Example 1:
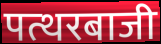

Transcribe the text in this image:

पत्थरबाजी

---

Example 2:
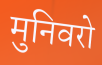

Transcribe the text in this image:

मुनिवरो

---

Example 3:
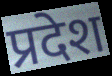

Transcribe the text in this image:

प्रदेश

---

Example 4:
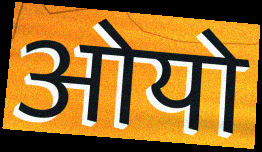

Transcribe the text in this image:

ओयो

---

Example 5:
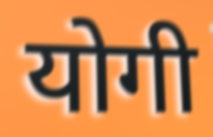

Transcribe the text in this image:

योगी